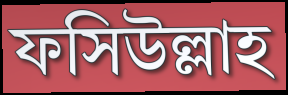
ফসিউল্লাহ